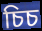
চিচ